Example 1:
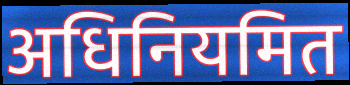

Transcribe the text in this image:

अधिनियमित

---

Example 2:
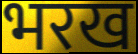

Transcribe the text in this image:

भरख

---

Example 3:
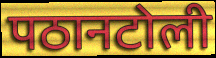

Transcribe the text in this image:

पठानटोली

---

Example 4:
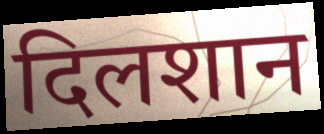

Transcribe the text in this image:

दिलशान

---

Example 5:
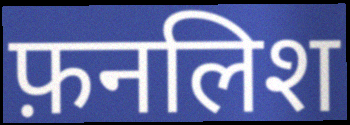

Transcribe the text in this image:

फ़नलिश